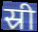
स्री